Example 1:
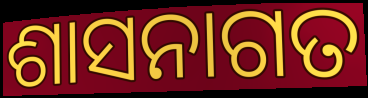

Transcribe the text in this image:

ଶାସନାଗତ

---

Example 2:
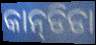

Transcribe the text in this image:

କାନ୍‌ଡିଡା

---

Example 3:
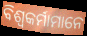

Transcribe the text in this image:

ବିଶ୍ଵକର୍ମାମାନେ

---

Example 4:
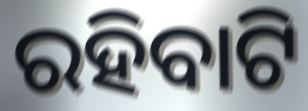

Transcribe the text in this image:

ରହିବାଟି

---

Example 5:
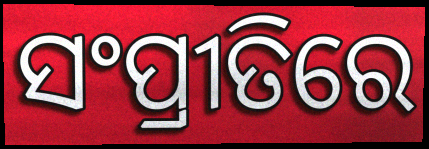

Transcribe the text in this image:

ସଂପ୍ରୀତିରେ